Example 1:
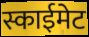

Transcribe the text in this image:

स्काईमेट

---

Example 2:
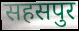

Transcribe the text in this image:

सहसपुर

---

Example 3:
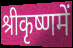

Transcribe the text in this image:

श्रीकृष्णमें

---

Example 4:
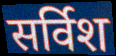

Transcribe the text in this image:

सर्विश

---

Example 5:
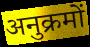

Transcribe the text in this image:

अनुक्रमों